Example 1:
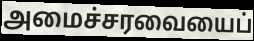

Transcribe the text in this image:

அமைச்சரவையைப்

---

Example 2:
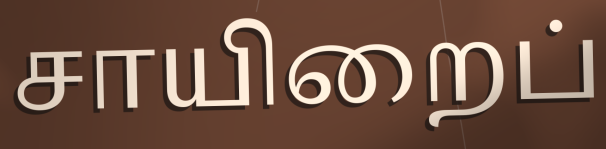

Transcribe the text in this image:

சாயிறைப்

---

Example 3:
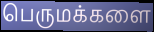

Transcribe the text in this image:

பெருமக்களை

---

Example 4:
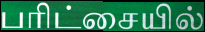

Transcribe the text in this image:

பரிட்சையில்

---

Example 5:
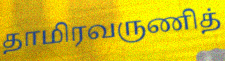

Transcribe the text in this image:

தாமிரவருணித்